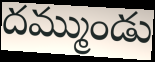
దమ్ముండు